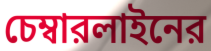
চেম্বারলাইনের